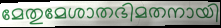
മേതുമേശാതഭിമതനായി